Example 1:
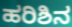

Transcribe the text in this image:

ಹರಿಶಿನ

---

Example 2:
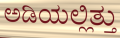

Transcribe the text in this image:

ಅಡಿಯಲ್ಲಿತ್ತು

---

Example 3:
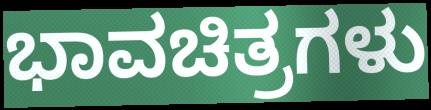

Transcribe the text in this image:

ಭಾವಚಿತ್ರಗಳು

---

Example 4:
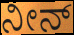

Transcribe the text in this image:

ನೀನ್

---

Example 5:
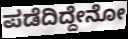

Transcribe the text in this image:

ಪಡೆದಿದ್ದೇನೋ